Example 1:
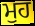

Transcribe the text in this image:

ਮੁਹ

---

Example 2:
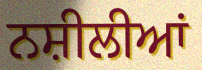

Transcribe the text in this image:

ਨਸ਼ੀਲੀਆਂ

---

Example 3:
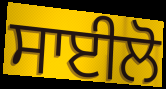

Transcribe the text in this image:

ਸਾਈਲੋ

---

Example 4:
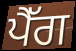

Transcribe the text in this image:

ਪੈੱਗ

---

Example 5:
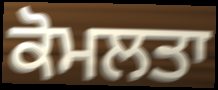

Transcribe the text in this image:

ਕੋਮਲਤਾ